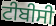
ਟੀਬੀਸੀ